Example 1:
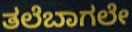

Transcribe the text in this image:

ತಲೆಬಾಗಲೇ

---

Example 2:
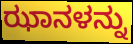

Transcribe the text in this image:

ಝಾನಳನ್ನು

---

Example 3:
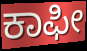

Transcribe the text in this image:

ಕಾಫೀ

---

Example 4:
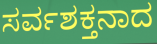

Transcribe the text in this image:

ಸರ್ವಶಕ್ತನಾದ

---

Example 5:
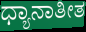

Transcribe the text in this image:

ಧ್ಯಾನಾತೀತ